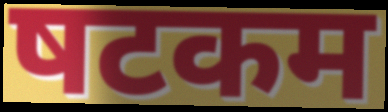
षटकम